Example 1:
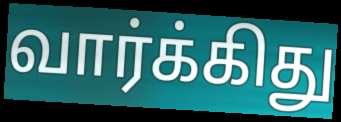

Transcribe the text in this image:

வார்க்கிது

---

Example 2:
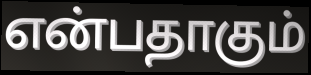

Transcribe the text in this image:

என்பதாகும்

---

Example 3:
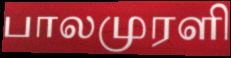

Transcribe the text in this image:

பாலமுரளி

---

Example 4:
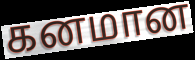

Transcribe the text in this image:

கனமான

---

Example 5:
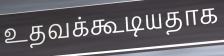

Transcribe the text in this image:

உதவக்கூடியதாக